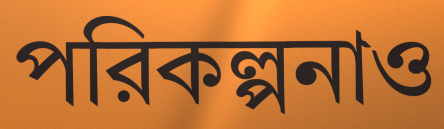
পরিকল্পনাও